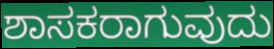
ಶಾಸಕರಾಗುವುದು